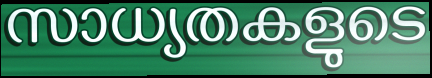
സാധ്യതകളുടെ